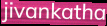
jivankatha